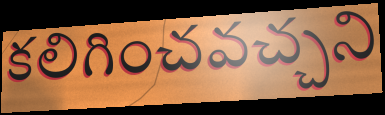
కలిగించవచ్చని